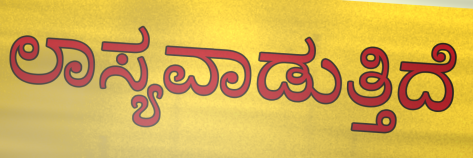
ಲಾಸ್ಯವಾಡುತ್ತಿದೆ